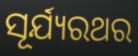
ସୂର୍ଯ୍ୟରଥର